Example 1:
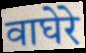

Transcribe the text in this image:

वाघेरे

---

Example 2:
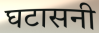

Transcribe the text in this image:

घटासनी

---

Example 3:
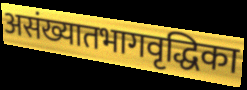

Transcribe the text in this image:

असंख्यातभागवृद्धिका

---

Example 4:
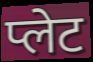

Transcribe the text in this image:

प्‍लेट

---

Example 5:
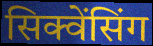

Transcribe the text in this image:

सिक्‍वेंसिंग